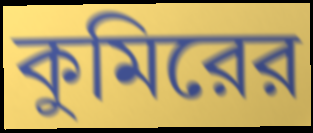
কুমিরের